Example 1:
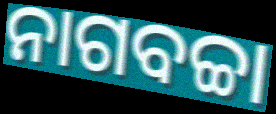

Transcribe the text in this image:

ନାଗବଚ୍ଚା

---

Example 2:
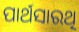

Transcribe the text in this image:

ପାର୍ଥସାରଥି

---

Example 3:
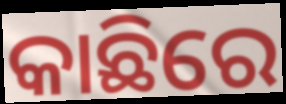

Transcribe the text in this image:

କାଛିରେ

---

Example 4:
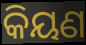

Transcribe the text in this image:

କିୟଣ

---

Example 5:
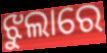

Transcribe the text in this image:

ଝୁଲାରେ